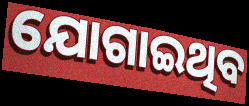
ଯୋଗାଇଥିବ